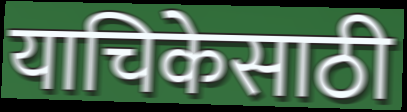
याचिकेसाठी